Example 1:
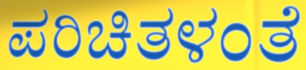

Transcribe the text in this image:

ಪರಿಚಿತಳಂತೆ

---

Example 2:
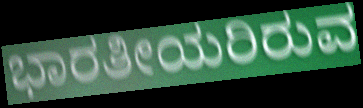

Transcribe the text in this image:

ಭಾರತೀಯರಿರುವ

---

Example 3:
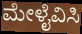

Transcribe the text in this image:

ಮೇಳೈವಿಸಿ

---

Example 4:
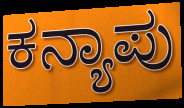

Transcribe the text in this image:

ಕನ್ಯಾಪು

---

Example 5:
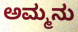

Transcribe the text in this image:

ಅಮ್ಮನು